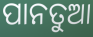
ପାନତୁଆ